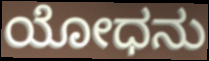
ಯೋಧನು